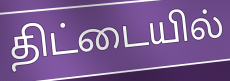
திட்டையில்